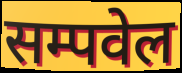
सम्पवेल